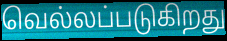
வெல்லப்படுகிறது